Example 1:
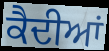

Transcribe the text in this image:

ਕੈਦੀਆਂ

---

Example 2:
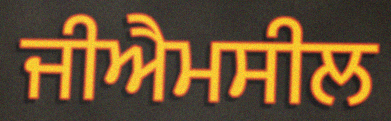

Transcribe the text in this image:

ਜੀਐਮਸੀਲ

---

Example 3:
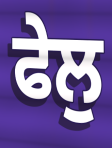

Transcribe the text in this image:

ਫੇਲੁ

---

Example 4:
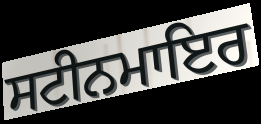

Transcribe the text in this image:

ਸਟੀਨਮਾਇਰ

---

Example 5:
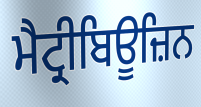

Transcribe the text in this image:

ਮੈਟ੍ਰੀਬਿਊਜ਼ਿਨ